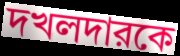
দখলদারকে